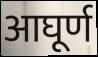
आघूर्ण